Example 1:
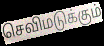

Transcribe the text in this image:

செவிமடுக்கும்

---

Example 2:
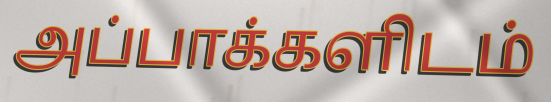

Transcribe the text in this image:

அப்பாக்களிடம்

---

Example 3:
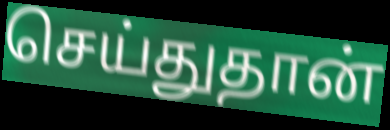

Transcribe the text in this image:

செய்துதான்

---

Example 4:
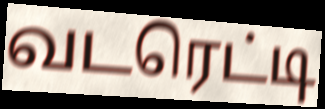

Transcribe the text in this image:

வடரெட்டி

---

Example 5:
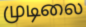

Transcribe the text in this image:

முடிலை